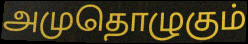
அமுதொழுகும்